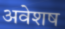
अवेशष